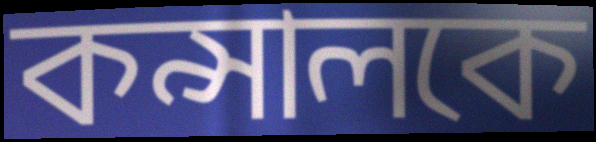
কন্সালকে